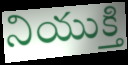
నియుక్తి